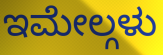
ಇಮೇಲ್ಗಳು